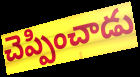
చెప్పించాడు